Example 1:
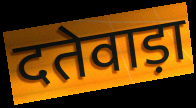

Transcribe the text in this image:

दतेवाड़ा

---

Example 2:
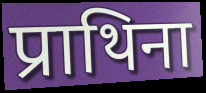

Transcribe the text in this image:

प्राथिना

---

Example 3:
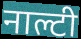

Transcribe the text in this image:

नाल्टी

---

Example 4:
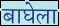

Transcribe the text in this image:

बाघेला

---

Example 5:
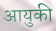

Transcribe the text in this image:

आयुकी